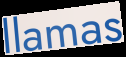
llamas